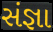
સંજ્ઞા